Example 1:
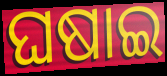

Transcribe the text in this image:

ଘଷାଇ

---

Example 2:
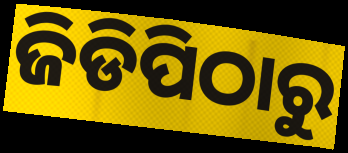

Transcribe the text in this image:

ଜିଡିପିଠାରୁ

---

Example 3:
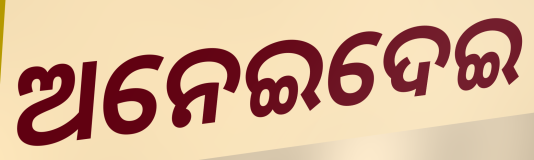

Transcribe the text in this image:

ଅନେଇଦେଇ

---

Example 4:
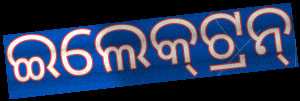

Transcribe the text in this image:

ଇଲେକ୍‌ଟ୍ରନ୍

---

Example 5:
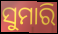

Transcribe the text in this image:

ସୁମାରି